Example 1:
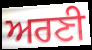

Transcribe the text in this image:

ਅਰਣੀ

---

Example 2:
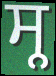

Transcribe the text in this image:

ਸ੍ਨ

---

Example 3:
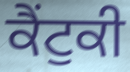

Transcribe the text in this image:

ਕੈਂਟੁਕੀ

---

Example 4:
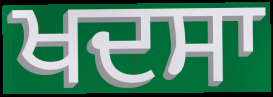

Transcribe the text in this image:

ਖਦਸਾ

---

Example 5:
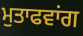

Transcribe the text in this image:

ਮੁਤਾਫਵਾਂਗ